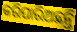
କରିପାରିଅଛନ୍ତି